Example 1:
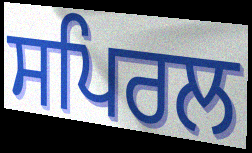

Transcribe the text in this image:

ਸਪਿਰਲ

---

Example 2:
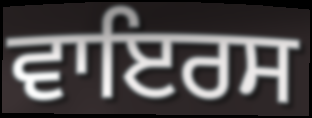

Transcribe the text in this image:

ਵਾਇਰਸ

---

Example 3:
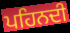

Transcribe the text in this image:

ਪਹਿਨਦੀ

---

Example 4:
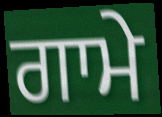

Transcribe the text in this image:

ਗਾਮੇ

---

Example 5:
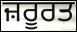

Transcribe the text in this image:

ਜ਼ਰੂਰਤ